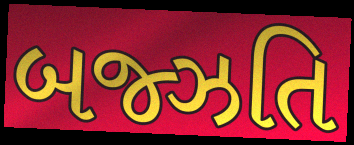
બજ્ઝતિ